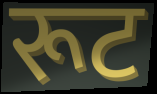
रूट